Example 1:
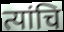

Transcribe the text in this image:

त्यांचि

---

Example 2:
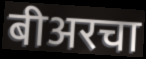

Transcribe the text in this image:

बीअरचा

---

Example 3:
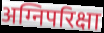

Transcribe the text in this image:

अग्निपरिक्षा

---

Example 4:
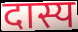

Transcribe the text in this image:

दास्य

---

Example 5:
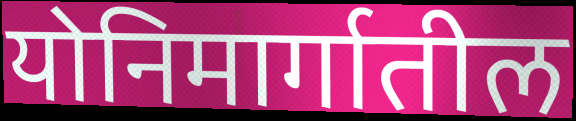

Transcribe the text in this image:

योनिमार्गातील